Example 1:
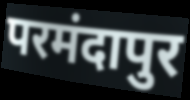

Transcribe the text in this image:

परमंदापुर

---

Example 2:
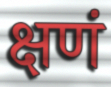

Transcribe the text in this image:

क्षणं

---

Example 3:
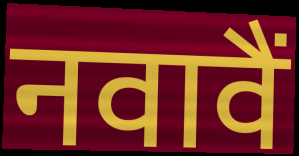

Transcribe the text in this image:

नवावैं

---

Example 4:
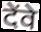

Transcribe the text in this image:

देंवे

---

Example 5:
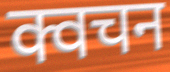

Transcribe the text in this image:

क्वचन